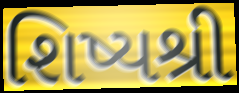
શિષ્યશ્રી